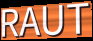
RAUT